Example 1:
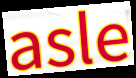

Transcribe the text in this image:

asle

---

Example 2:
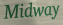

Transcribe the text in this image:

Midway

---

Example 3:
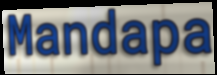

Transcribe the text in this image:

Mandapa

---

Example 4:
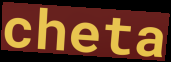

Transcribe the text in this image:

cheta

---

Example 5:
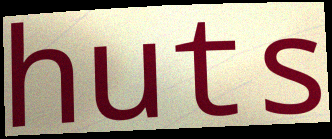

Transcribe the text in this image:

huts